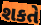
શકતે